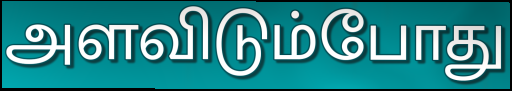
அளவிடும்போது